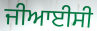
ਜੀਆਈਸੀ